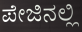
ಪೇಜಿನಲ್ಲಿ